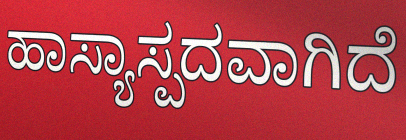
ಹಾಸ್ಯಾಸ್ಪದವಾಗಿದೆ